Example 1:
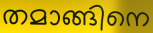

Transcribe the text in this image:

തമാങ്ങിനെ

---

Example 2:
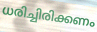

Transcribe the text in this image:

ധരിച്ചിരിക്കണം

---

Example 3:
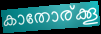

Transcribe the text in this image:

കാതോര്ക്കൂ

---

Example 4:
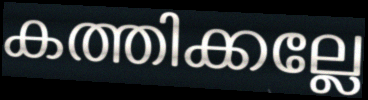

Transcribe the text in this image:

കത്തിക്കല്ലേ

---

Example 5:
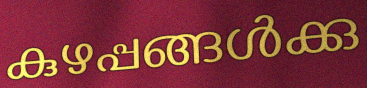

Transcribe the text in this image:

കുഴപ്പങ്ങൾക്കു